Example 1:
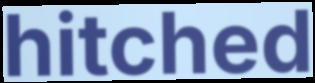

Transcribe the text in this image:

hitched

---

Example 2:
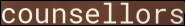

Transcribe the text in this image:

counsellors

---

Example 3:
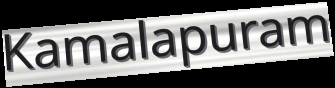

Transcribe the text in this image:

Kamalapuram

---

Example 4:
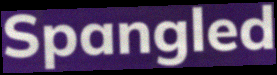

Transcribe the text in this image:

Spangled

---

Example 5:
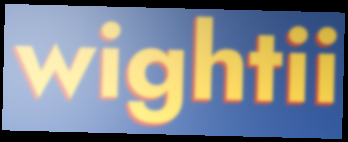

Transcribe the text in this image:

wightii